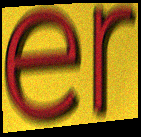
er